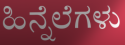
ಹಿನ್ನೆಲೆಗಳು